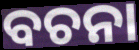
ବଚନା